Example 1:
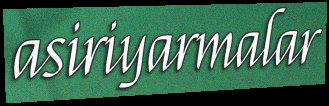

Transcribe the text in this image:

asiriyarmalar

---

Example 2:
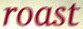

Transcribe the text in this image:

roast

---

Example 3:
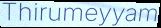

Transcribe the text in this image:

Thirumeyyam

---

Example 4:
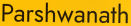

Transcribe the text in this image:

Parshwanath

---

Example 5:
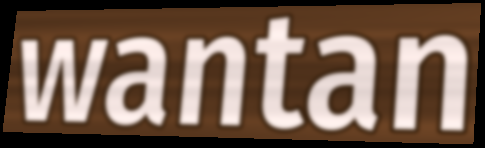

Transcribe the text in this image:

wantan